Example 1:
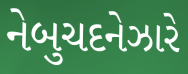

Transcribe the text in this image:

નેબુચદનેઝારે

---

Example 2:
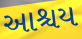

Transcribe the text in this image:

આશ્ચય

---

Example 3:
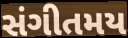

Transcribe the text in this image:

સંગીતમય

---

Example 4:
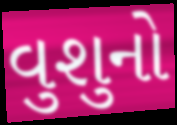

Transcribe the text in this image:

વુશુનો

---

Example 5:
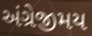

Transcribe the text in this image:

અંગ્રેજીમય